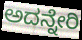
ಅದನ್ನೇರಿ